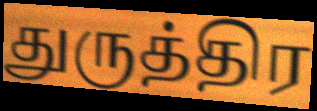
துருத்திர